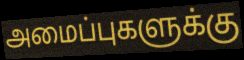
அமைப்புகளுக்கு